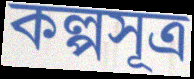
কল্পসূত্র